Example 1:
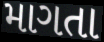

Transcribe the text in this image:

માગતા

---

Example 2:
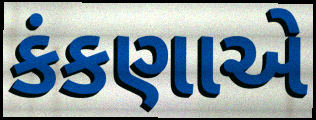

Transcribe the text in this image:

કંકણાએ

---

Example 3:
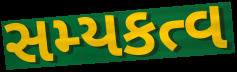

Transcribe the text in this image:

સમ્યકત્વ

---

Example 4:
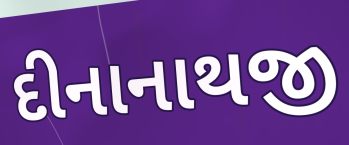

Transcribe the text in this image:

દીનાનાથજી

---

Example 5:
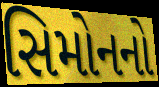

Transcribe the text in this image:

સિમોનનો